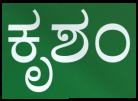
ಕೃಶಂ